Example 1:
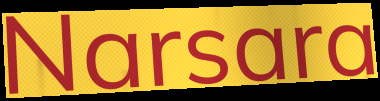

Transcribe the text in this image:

Narsara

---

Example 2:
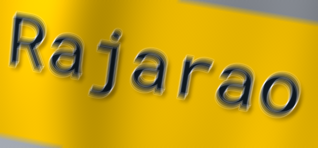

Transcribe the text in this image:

Rajarao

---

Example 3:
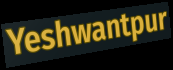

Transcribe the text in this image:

Yeshwantpur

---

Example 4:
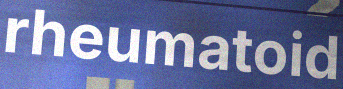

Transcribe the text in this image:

rheumatoid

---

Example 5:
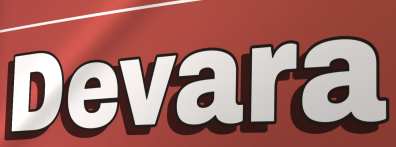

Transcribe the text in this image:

Devara